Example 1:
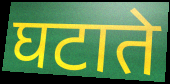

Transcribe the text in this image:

घटाते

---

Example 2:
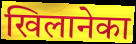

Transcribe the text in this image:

खिलानेका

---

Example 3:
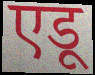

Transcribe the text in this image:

एडू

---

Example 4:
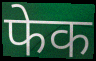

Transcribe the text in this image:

फेक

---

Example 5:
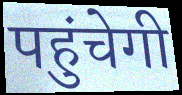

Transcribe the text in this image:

पहुंचेगी